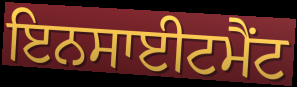
ਇਨਸਾਈਟਮੈਂਟ